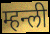
म्हन्ली